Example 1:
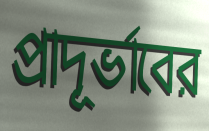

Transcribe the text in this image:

প্রাদূর্ভাবের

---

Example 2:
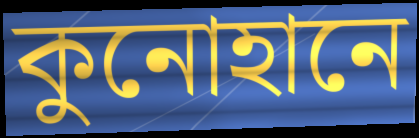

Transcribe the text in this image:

কুনোহানে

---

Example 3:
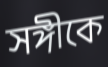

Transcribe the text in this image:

সঙ্গীকে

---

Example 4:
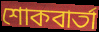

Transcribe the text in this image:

শোকবার্তা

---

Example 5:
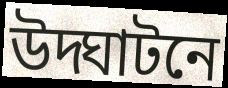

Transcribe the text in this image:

উদ্ঘাটনে